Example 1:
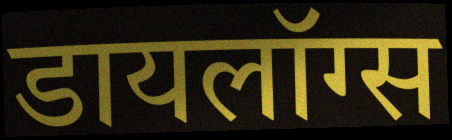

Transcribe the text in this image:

डायलॉग्स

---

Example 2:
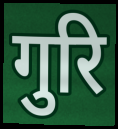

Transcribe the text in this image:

गुरि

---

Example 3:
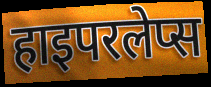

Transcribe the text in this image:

हाइपरलेप्स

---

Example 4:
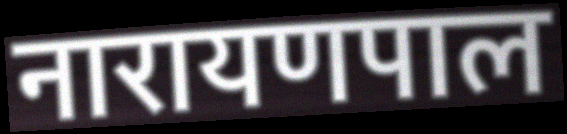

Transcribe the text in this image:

नारायणपाल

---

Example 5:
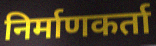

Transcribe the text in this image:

निर्माणकर्ता